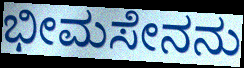
ಭೀಮಸೇನನು